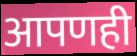
आपणही